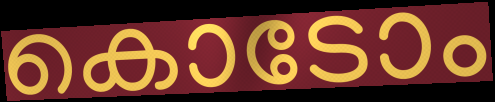
കൊടോം